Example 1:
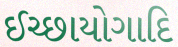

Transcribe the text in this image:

ઈચ્છાયોગાદિ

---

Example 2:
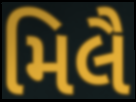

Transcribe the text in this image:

મિલૈ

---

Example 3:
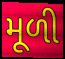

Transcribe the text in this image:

મૂળી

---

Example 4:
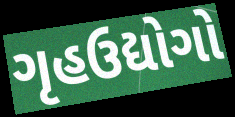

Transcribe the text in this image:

ગૃહઉદ્યોગો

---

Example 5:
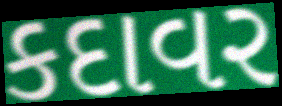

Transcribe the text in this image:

કદાવર